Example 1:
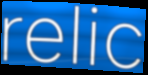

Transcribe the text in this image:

relic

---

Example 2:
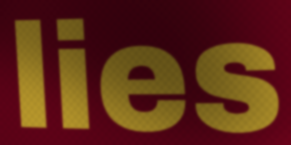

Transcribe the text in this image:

lies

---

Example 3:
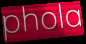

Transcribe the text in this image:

phola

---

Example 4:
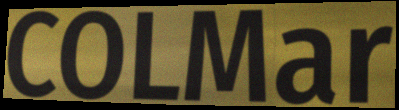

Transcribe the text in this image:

COLMar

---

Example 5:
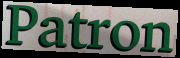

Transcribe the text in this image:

Patron